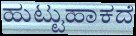
ಹುಟ್ಟುಹಾಕದೆ